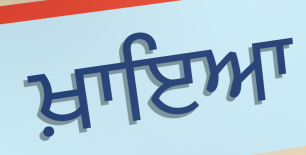
ਖ਼ਾਇਆ